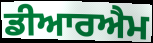
ਡੀਆਰਐਮ